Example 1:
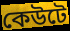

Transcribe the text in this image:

কেউটে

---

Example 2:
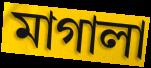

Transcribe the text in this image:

মাগালা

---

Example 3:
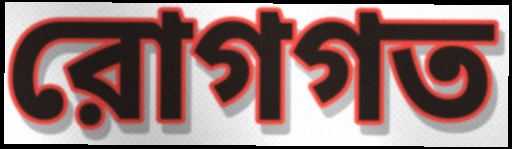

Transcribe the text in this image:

রোগগত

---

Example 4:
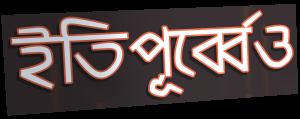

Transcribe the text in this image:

ইতিপূর্ব্বেও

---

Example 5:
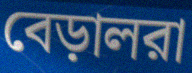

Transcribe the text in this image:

বেড়ালরা